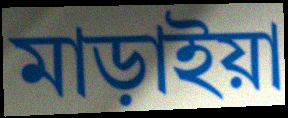
মাড়াইয়া